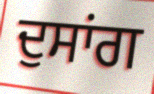
ਦੁਸਾਂਗ